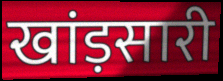
खांड़सारी